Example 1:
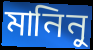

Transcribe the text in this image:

মানিনু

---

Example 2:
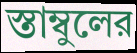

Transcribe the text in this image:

স্তাম্বুলের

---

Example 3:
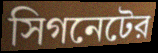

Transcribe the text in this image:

সিগনেটের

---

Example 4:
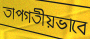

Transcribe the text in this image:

তাপগতীয়ভাবে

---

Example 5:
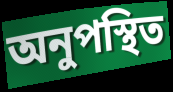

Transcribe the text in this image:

অনুপস্থিত